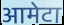
आमेटा